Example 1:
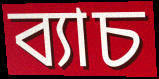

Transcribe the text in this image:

ব্যাচ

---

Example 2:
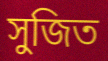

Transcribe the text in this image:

সুজিত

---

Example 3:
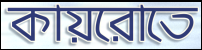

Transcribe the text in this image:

কায়রোতে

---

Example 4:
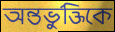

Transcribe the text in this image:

অন্তর্ভুক্তিকে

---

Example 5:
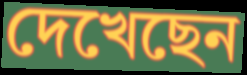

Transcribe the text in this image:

দেখেছেন